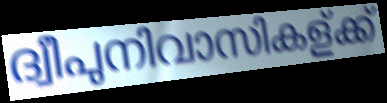
ദ്വീപുനിവാസികള്ക്ക്